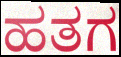
ಹತಗ